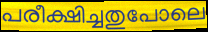
പരീക്ഷിച്ചതുപോലെ